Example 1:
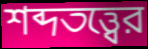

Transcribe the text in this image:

শব্দতত্ত্বের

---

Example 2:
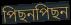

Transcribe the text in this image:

পিছনপিছন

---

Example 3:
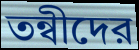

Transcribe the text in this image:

তন্বীদের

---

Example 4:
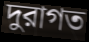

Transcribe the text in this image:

দুরাগত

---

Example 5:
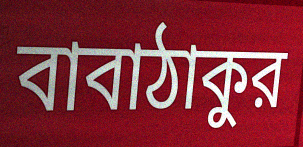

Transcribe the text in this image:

বাবাঠাকুর